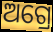
ଅଗ୍ରେ